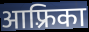
आफ़्रिका